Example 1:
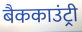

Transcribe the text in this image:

बैककाउंट्री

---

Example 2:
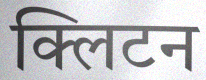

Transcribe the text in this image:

क्लिटन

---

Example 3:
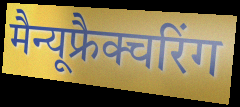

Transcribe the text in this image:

मैन्यूफ्रैक्चरिंग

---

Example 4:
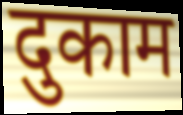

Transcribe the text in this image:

दुकाम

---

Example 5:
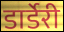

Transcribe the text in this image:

डार्डेरी